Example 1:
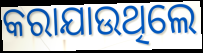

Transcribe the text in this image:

କରାଯାଉଥିଲେ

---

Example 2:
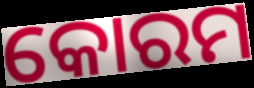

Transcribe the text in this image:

କୋରମ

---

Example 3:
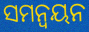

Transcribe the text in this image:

ସମନ୍ୱୟନ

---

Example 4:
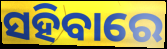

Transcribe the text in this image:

ସହିବାରେ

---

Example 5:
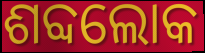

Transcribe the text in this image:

ଶବ୍ଦଲୋକ